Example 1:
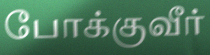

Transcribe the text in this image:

போக்குவீர்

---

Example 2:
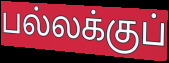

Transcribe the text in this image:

பல்லக்குப்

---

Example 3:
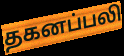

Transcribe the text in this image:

தகனப்பலி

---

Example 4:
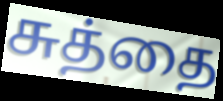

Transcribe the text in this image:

சுத்தை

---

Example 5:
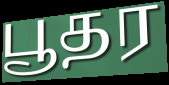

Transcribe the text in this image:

பூதர